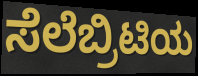
ಸೆಲೆಬ್ರಿಟಿಯ